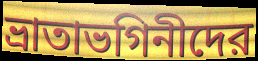
ভ্রাতাভগিনীদের